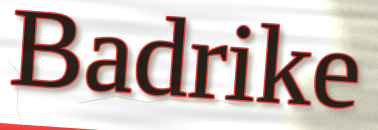
Badrike